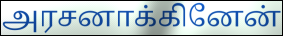
அரசனாக்கினேன்